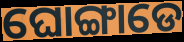
ଘୋଙ୍ଗାଡେ